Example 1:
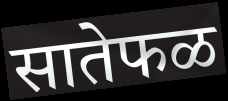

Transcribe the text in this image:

सातेफळ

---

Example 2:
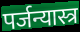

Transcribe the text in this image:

पर्जन्यास्त्र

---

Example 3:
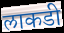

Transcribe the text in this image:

लाकडी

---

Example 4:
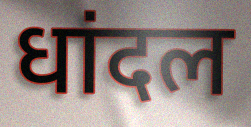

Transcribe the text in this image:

धांदल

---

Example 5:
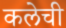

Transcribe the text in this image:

कलेची